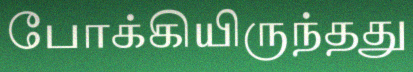
போக்கியிருந்தது